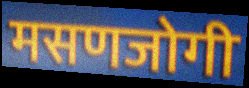
मसणजोगी